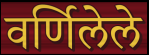
वर्णिलेले